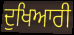
ਦੁਖਿਆਰੀ